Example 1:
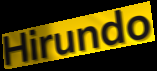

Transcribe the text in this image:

Hirundo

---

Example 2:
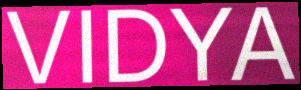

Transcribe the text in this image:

VIDYA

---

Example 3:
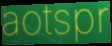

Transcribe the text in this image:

aotspr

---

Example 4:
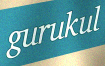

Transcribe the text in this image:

gurukul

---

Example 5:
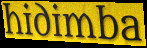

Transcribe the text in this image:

hidimba